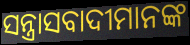
ସନ୍ତ୍ରାସବାଦୀମାନଙ୍କ